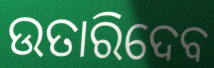
ଉତାରିଦେବ